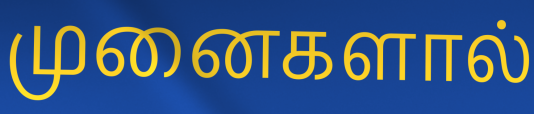
முனைகளால்